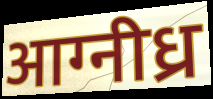
आग्नीध्र